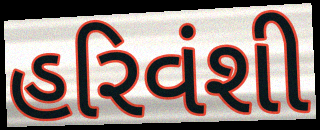
હરિવંશી